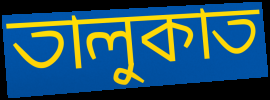
তালুকাত